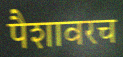
पैशावरच